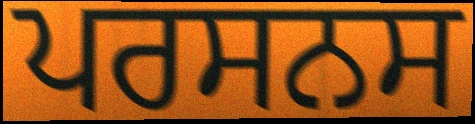
ਪਰਸਨਸ